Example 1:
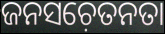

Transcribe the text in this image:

ଜନସଚ଼େତନତା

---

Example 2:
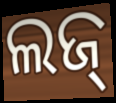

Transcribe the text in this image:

ଲଜ୍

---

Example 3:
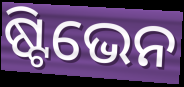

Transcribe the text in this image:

ଷ୍ଟିଭେନ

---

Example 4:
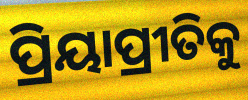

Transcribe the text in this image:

ପ୍ରିୟାପ୍ରୀତିକୁ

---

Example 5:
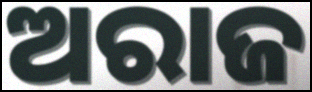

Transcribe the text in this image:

ଅରାଜ